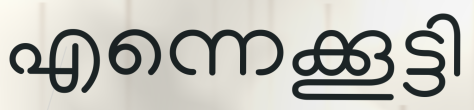
എന്നെക്കൂട്ടി